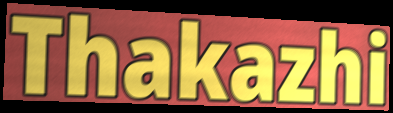
Thakazhi